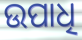
ଉପାଧି